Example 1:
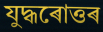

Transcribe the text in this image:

যুদ্ধৰোত্তৰ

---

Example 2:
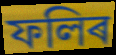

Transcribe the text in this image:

ফলিৰ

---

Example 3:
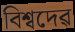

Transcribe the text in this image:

বিশ্বদেৱ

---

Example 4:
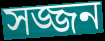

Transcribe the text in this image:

সজ্জন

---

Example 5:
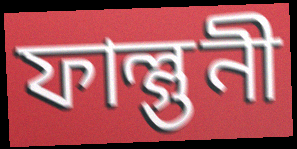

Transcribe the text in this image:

ফাল্গুনী